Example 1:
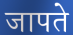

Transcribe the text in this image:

जापते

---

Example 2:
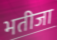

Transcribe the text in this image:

भतीजा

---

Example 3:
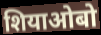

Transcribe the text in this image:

शियाओबो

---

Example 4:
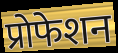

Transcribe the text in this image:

प्रोफेशन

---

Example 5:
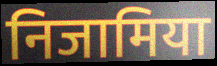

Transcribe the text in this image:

निजामिया